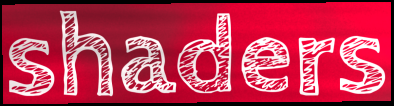
shaders